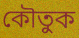
কৌতুক